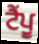
ਟੈਂਪੂ